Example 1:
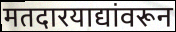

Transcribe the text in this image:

मतदारयाद्यांवरून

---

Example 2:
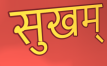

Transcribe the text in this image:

सुखम्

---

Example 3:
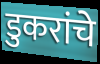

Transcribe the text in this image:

डुकरांचे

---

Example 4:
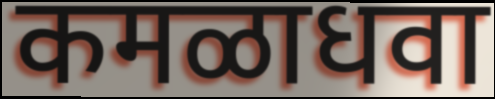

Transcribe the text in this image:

कमळाधवा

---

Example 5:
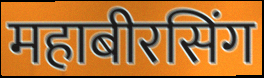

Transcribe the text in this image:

महाबीरसिंग